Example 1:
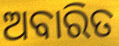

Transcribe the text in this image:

ଅବାରିତ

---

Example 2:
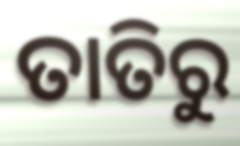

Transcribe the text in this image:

ତାତିରୁ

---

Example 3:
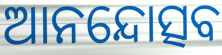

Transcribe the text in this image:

ଆନନ୍ଦୋତ୍ସବ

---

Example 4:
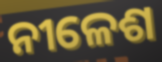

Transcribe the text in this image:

ନୀଳେଶ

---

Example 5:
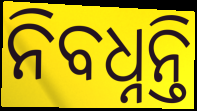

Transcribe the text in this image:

ନିବଧ୍ନନ୍ତି